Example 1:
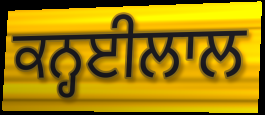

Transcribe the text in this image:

ਕਨ੍ਹਈਲਾਲ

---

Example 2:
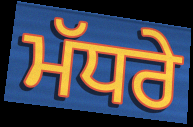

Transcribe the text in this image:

ਮੱਧਰੇ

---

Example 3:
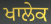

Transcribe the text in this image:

ਖਾਲੇਕ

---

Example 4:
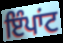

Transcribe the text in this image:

ਇੰਪਾਂਟ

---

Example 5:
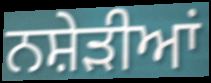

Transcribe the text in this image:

ਨਸ਼ੇੜੀਆਂ